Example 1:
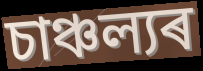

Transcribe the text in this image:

চাঞ্চল্যৰ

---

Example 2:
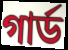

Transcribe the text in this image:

গাৰ্ড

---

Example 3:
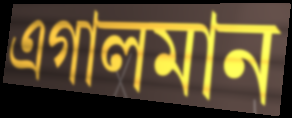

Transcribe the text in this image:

এগালমান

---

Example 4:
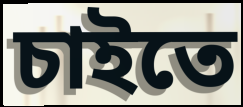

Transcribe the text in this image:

চাইতে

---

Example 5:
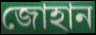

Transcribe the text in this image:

জোহান